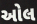
ઓલ